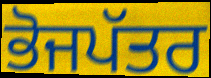
ਭੋਜਪੱਤਰ